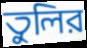
তুলির